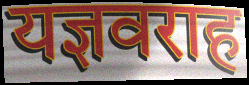
यज्ञवराह